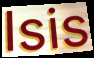
Isis